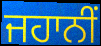
ਜਹਾਨੀਂ